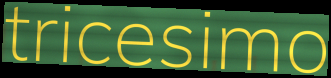
tricesimo